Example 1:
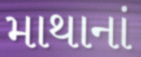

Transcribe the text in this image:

માથાનાં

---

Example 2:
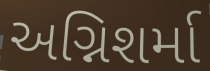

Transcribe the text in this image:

અગ્નિશર્મા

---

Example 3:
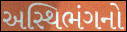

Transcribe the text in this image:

અસ્થિભંગનો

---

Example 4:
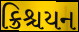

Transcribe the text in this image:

ક્રિશ્ચયન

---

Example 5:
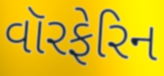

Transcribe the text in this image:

વૉરફેરિન